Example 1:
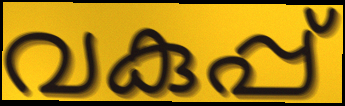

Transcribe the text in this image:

വകുപ്പ്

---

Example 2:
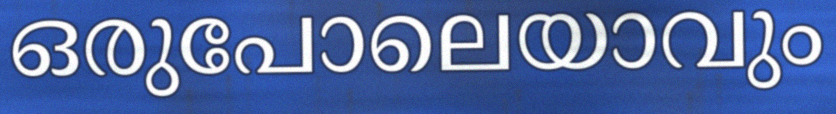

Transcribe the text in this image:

ഒരുപോലെയാവും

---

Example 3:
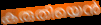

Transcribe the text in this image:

കരുതിയെൻ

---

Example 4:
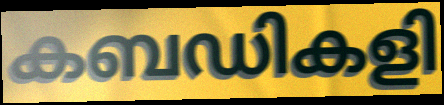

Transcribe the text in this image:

കബഡികളി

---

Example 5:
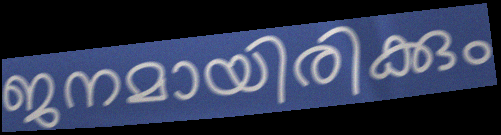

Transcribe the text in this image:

ജനമായിരിക്കും